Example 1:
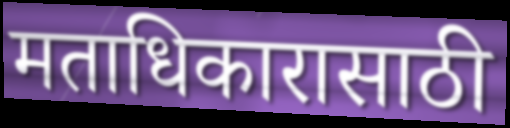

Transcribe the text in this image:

मताधिकारासाठी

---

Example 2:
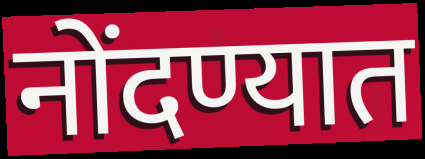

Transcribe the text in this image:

नोंदण्यात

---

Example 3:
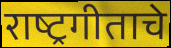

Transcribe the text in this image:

राष्ट्रगीताचे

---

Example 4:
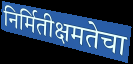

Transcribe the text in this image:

निर्मितीक्षमतेचा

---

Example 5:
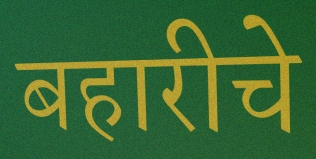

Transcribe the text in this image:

बहारीचे